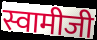
स्‍वामीजी